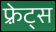
फ़्रेट्स